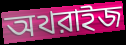
অথরাইজ